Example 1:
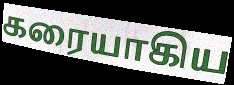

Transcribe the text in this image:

கரையாகிய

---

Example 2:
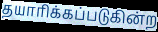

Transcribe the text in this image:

தயாரிக்கப்படுகின்ற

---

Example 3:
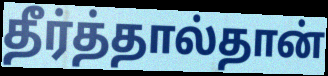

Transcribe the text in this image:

தீர்த்தால்தான்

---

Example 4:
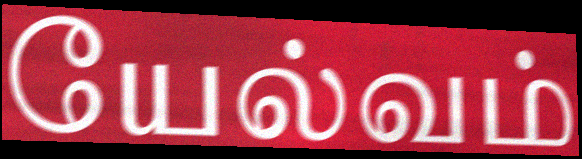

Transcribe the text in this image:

யேல்வம்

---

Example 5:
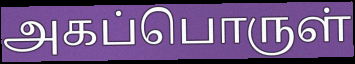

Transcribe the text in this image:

அகப்பொருள்